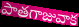
పాతగాజువాక